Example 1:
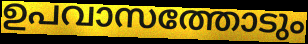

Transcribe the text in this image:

ഉപവാസത്തോടും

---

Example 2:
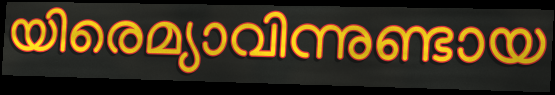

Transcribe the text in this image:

യിരെമ്യാവിന്നുണ്ടായ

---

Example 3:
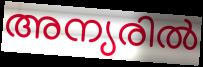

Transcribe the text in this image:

അന്യരിൽ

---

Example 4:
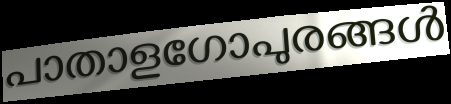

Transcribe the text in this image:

പാതാളഗോപുരങ്ങൾ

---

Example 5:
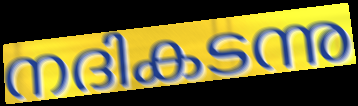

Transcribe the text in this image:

നദികടന്നു